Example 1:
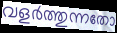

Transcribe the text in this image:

വളർത്തുന്നതോ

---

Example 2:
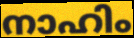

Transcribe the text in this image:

നാഹിം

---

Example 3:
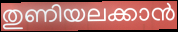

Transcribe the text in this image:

തുണിയലക്കാൻ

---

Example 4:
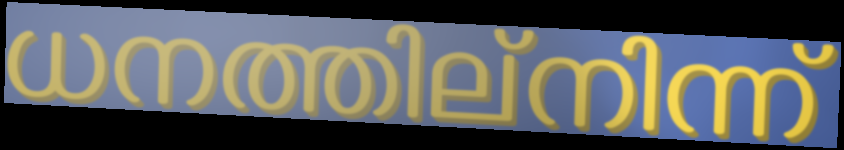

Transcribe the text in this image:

ധനത്തില്നിന്ന്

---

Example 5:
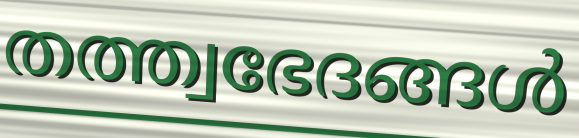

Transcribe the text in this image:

തത്ത്വഭേദങ്ങൾ